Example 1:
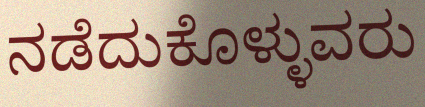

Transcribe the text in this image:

ನಡೆದುಕೊಳ್ಳುವರು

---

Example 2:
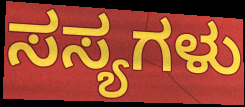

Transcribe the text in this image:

ಸಸ್ಯಗಳು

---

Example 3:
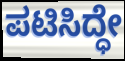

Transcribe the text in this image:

ಪಟಿಸಿದ್ಧೇ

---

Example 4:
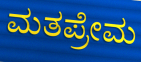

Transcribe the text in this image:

ಮತಪ್ರೇಮ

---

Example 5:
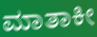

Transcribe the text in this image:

ಮಾತಾಕೀ